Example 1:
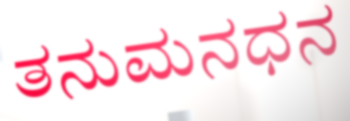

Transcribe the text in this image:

ತನುಮನಧನ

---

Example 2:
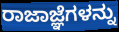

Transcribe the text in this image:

ರಾಜಾಜ್ಞೆಗಳನ್ನು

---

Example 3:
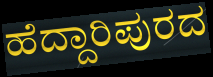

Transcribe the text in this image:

ಹೆದ್ದಾರಿಪುರದ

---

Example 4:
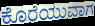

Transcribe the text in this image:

ಕೊರೆಯುವಾಗ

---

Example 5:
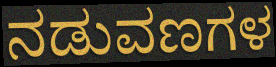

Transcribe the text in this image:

ನಡುವಣಗಳ